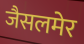
जैसलमेर